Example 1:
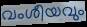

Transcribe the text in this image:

വംശീയവും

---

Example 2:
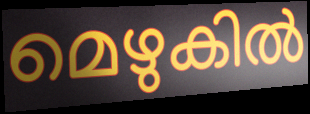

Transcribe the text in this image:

മെഴുകിൽ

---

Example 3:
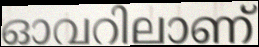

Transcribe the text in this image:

ഓവറിലാണ്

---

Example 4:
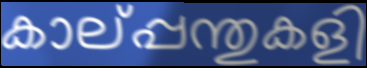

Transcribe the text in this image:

കാല്പ്പന്തുകളി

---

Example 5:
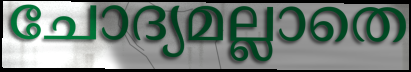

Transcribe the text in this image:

ചോദ്യമല്ലാതെ